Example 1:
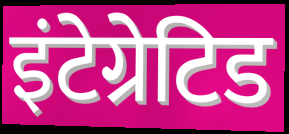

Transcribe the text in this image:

इंटेग्रेटिड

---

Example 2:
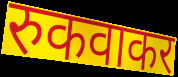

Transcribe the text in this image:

रुकवाकर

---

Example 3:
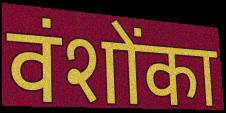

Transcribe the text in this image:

वंशोंका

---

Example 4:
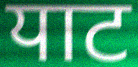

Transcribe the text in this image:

याट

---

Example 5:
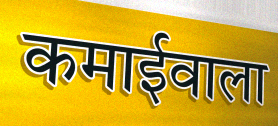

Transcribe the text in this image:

कमाईवाला